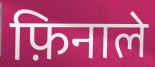
फ़िनाले